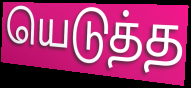
யெடுத்த